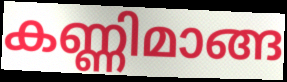
കണ്ണിമാങ്ങ